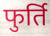
फुर्ति